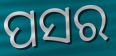
ପସର